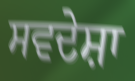
ਸਵਦੇਸ਼ਾ